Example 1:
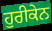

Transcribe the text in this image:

ਹੁਰੀਕੇਨ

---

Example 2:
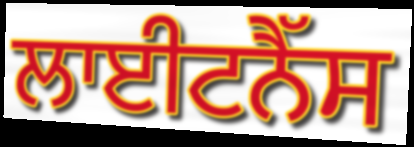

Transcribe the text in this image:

ਲਾਈਟਨੈੱਸ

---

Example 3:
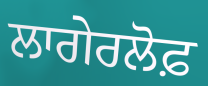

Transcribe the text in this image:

ਲਾਗੇਰਲੋਫ਼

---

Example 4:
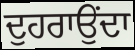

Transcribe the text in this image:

ਦੁਹਰਾਉਂਦਾ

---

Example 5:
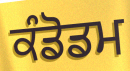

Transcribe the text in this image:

ਕੰਡੋਡਮ